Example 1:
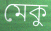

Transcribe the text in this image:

মেকু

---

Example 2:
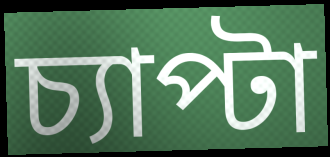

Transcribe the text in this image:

চ্যাপ্টা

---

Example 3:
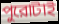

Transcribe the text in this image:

পুরোটাই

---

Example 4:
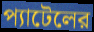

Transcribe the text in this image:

প্যাটেলের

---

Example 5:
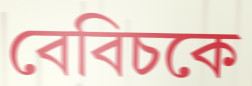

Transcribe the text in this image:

বেবিচকে